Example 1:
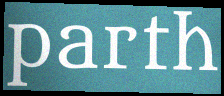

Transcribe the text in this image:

parth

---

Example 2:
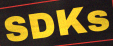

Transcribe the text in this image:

SDKs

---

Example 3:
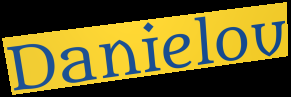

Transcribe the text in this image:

Danielou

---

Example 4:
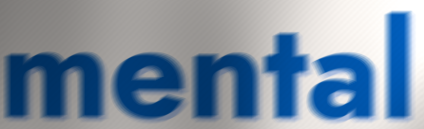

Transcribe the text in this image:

mental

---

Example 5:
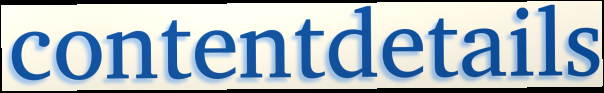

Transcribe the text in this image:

contentdetails